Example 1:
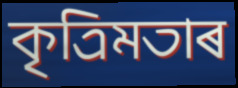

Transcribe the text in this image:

কৃত্ৰিমতাৰ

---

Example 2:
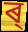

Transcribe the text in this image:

ৰ্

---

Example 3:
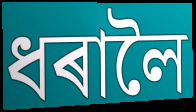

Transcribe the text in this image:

ধৰালৈ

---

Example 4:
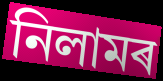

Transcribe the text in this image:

নিলামৰ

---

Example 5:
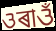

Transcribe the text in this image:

ওৰাওঁ